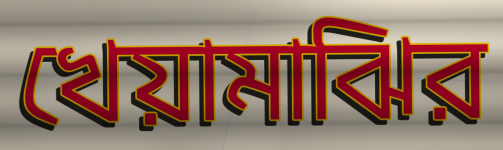
খেয়ামাঝির